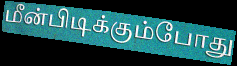
மீன்பிடிக்கும்போது